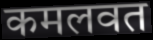
कमलवत